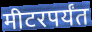
मीटरपर्यंत